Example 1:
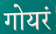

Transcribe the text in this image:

गोयरं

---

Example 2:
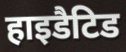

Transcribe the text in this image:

हाइडैटिड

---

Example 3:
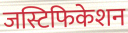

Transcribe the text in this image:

जस्टिफिकेशन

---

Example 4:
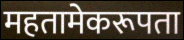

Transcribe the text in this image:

महतामेकरूपता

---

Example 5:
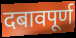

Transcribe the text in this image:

दबावपूर्ण